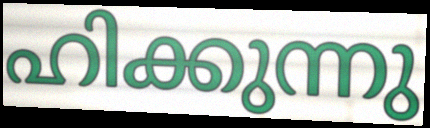
ഹിക്കുന്നു